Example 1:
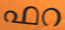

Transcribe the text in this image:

ഫറ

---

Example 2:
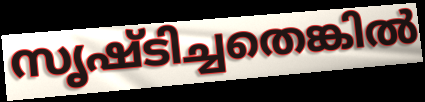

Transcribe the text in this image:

സൃഷ്ടിച്ചതെങ്കിൽ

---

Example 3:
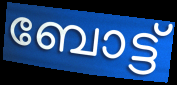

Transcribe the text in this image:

ബോട്ട്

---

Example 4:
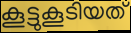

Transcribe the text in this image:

കൂട്ടുകൂടിയത്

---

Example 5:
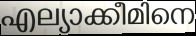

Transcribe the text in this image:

എല്യാക്കീമിനെ